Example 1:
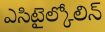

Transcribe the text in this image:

ఎసిటైల్కోలిన్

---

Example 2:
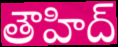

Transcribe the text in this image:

తౌహిద్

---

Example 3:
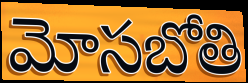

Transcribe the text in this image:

మోసబోతి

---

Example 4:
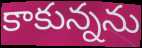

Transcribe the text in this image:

కాకున్నను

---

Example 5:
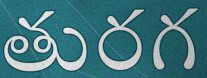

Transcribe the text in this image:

తురగ